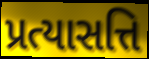
પ્રત્યાસત્તિ